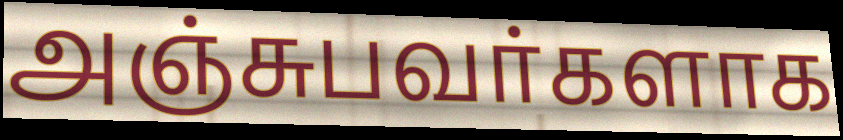
அஞ்சுபவர்களாக